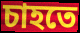
চাহতে